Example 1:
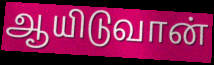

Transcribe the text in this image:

ஆயிடுவான்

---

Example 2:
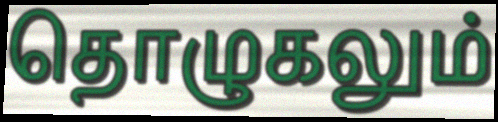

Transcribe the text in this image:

தொழுகலும்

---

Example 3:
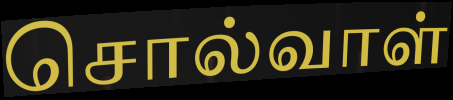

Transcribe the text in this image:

சொல்வாள்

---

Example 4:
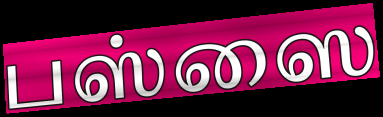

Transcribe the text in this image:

பஸ்ஸை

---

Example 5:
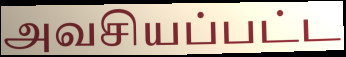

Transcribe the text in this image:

அவசியப்பட்ட